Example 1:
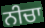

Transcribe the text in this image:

ਨੀਚਾ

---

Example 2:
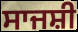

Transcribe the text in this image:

ਸਾਜਸ਼ੀ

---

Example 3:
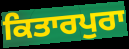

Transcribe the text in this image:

ਕਿਤਾਰਪੁਰਾ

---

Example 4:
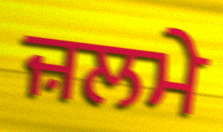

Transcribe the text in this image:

ਜ਼ਲਮੇ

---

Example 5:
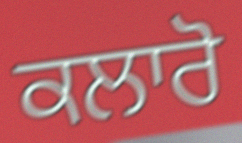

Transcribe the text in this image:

ਕਲਾਰੋ